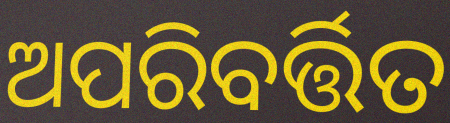
ଅପରିବର୍ତ୍ତିତ